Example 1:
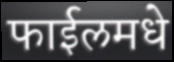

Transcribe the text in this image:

फाईलमधे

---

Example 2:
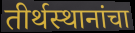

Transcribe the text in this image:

तीर्थस्थानांचा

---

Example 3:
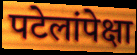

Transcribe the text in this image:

पटेलांपेक्षा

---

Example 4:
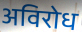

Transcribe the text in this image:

अविरोध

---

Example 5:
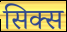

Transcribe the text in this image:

सिक्स